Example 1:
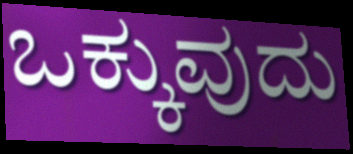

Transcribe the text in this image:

ಒಕ್ಕುವುದು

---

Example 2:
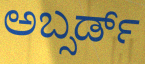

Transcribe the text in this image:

ಅಬ್ಸರ್ಡ್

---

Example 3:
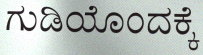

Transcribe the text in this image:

ಗುಡಿಯೊಂದಕ್ಕೆ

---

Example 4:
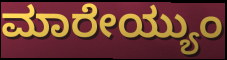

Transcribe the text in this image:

ಮಾರೇಯ್ಯುಂ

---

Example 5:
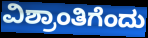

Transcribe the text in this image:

ವಿಶ್ರಾಂತಿಗೆಂದು